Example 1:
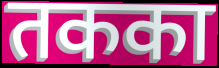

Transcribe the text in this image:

तकका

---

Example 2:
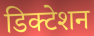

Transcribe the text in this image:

डिक्टेशन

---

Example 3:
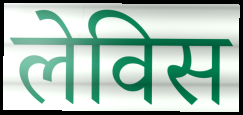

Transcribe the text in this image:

लेविस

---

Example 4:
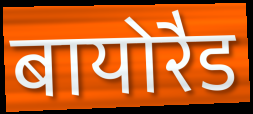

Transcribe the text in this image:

बायोरैड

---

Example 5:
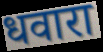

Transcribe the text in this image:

धवारा